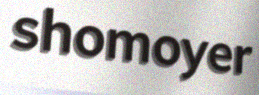
shomoyer